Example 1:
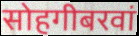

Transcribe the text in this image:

सोहगीबरवां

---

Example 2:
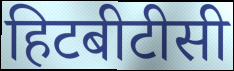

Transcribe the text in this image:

हिटबीटीसी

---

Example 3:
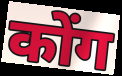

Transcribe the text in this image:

कोंग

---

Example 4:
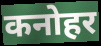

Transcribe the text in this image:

कनोहर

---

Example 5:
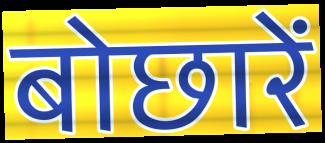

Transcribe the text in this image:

बोछारें